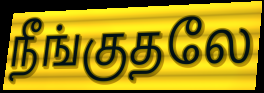
நீங்குதலே